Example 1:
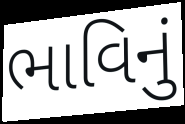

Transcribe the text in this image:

ભાવિનું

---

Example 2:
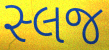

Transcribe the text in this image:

સ્લજ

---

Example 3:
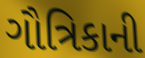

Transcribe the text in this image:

ગૌત્રિકાની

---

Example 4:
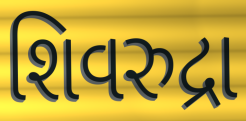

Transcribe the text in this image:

શિવરુદ્રા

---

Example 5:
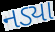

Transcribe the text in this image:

નડ્યા